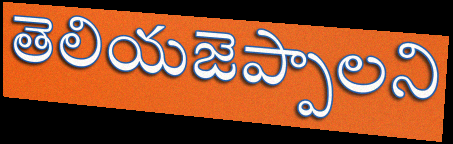
తెలియజెప్పాలని